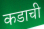
कडाची